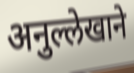
अनुल्लेखाने